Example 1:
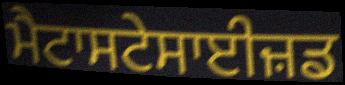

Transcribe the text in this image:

ਮੈਟਾਸਟੇਸਾਈਜ਼ਡ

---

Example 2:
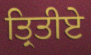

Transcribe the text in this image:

ਤ੍ਰਿਤੀਏ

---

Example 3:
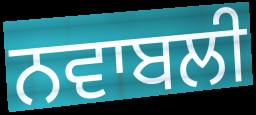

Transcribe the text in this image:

ਨਵਾਬਲੀ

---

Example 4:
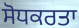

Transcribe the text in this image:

ਸੋਧਕਰਤਾ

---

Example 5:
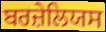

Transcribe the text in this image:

ਬਰਜ਼ੇਲਿਯਸ